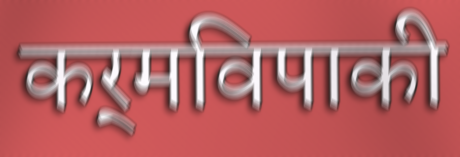
कर्मविपाकी